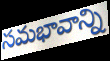
సమభావాన్ని